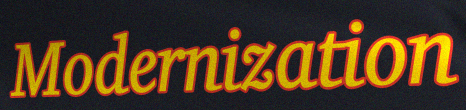
Modernization